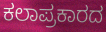
ಕಲಾಪ್ರಕಾರದ